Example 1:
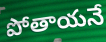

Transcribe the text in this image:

పోతాయనే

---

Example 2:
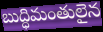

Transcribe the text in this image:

బుద్ధిమంతులైన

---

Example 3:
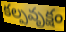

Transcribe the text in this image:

కల్పవృక్షం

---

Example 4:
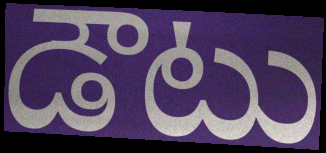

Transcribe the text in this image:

డౌటు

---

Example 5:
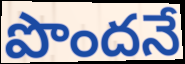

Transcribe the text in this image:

పొందనే